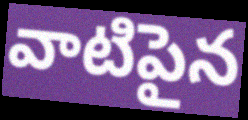
వాటిపైన